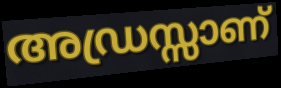
അഡ്രസ്സാണ്